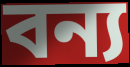
বন্য